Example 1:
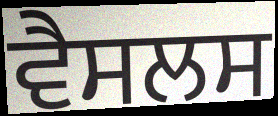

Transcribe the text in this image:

ਵੈਸਲਸ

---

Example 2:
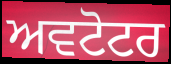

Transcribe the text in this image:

ਅਵਟੋਟਰ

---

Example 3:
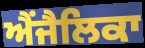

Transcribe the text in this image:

ਐਂਜੈਲਿਕਾ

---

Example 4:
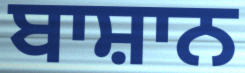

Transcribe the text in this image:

ਬਾਸ਼ਾਨ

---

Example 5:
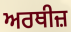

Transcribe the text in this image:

ਅਰਥੀਜ਼